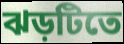
ঝড়টিতে